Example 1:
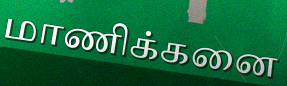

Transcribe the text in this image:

மாணிக்கனை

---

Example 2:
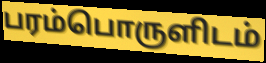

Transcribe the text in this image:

பரம்பொருளிடம்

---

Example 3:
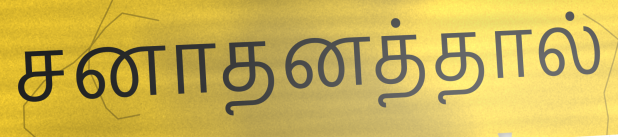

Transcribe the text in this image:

சனாதனத்தால்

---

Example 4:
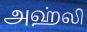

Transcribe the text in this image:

அஹ்லி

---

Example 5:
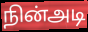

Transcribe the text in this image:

நின்அடி